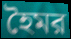
হৈমর